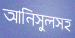
আনিসুলসহ